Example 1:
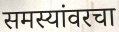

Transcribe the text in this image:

समस्यांवरचा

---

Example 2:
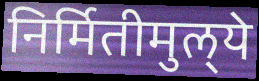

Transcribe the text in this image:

निर्मितीमुल्ये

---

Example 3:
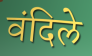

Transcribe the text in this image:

वंदिले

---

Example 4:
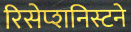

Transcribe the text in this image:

रिसेप्शनिस्टने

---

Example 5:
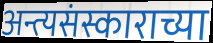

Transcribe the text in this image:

अन्त्यसंस्काराच्या